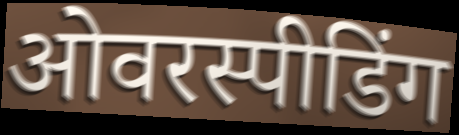
ओवरस्पीडिंग